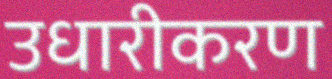
उधारीकरण